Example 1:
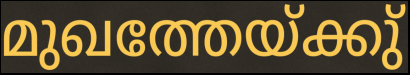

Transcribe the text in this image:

മുഖത്തേയ്ക്കു്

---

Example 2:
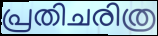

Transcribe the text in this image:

പ്രതിചരിത്ര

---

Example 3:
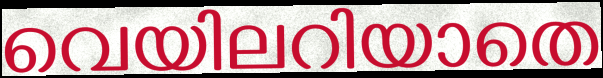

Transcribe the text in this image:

വെയിലറിയാതെ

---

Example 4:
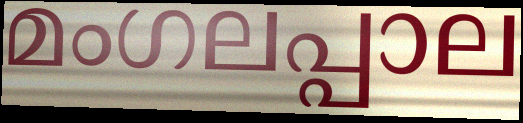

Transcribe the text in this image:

മംഗലപ്പാല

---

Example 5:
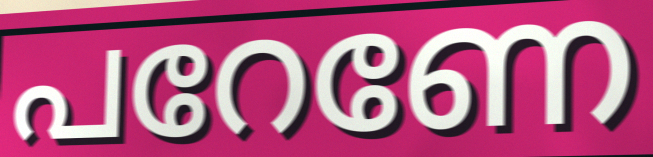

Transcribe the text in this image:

പറേണേ